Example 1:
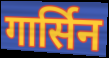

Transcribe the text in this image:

गार्सिन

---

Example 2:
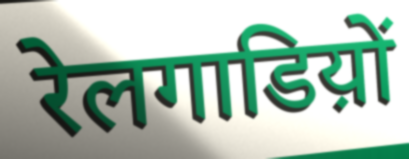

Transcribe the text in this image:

रेलगाडिय़ों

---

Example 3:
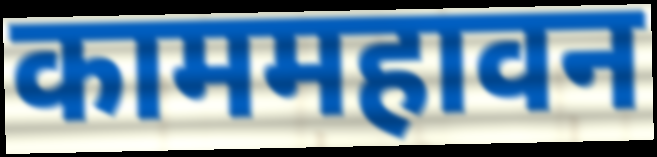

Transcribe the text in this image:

काममहावन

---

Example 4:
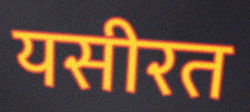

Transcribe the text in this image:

यसीरत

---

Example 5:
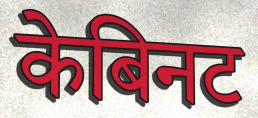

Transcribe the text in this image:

केबिनट